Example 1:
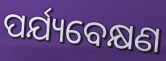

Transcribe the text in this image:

ପର୍ଯ୍ୟବେକ୍ଷଣ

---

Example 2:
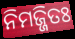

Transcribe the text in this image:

ନିମଜ୍ଜିତଃ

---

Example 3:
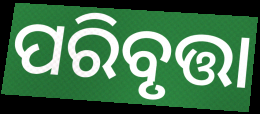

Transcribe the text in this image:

ପରିବୃତ୍ତା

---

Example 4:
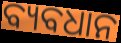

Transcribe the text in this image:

ବ୍ୟବଧାନ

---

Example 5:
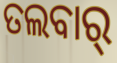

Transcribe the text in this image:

ତଲବାର୍